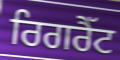
ਰਿਗਰੈੱਟ